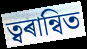
ত্বৰান্বিত